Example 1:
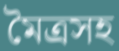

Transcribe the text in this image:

মৈত্রসহ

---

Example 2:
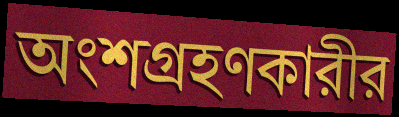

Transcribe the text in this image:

অংশগ্রহণকারীর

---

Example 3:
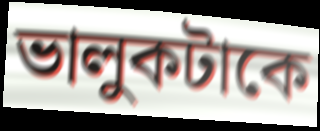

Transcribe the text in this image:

ভালুকটাকে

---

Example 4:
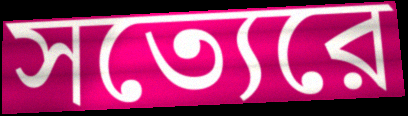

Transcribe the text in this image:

সত্যেরে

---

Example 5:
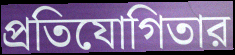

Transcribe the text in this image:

প্রতিযোগিতার